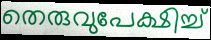
തെരുവുപേക്ഷിച്ച്